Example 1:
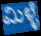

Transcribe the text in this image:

ಮಿಳ್ಳೆ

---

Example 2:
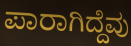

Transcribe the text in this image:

ಪಾರಾಗಿದ್ದೆವು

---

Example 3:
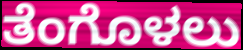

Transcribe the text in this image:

ತೆಂಗೊಳಲು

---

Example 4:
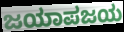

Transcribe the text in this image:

ಜಯಾಪಜಯ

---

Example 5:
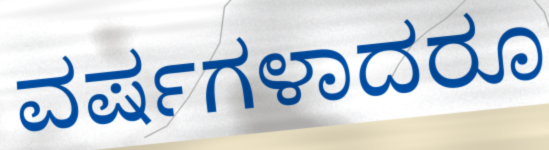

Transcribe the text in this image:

ವರ್ಷಗಳಾದರೂ